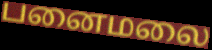
பனைமலை